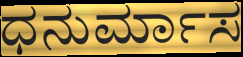
ಧನುರ್ಮಾಸ